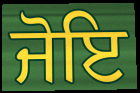
ਜੋਇ